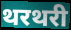
थरथरी